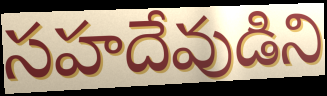
సహదేవుడిని